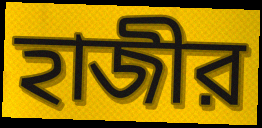
হাজীর